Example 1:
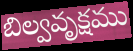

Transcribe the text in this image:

బిల్వవృక్షము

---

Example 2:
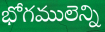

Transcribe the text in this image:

భోగములెన్ని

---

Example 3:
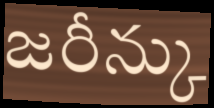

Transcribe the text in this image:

జరీన్కు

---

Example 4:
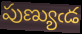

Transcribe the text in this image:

పుణ్యుఁడ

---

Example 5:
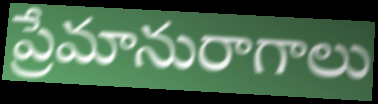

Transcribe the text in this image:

ప్రేమానురాగాలు